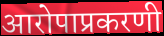
आरोपाप्रकरणी